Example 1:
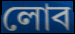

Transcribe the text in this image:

লোব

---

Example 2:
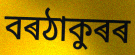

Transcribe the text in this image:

বৰঠাকুৰৰ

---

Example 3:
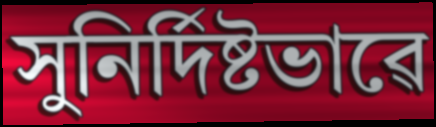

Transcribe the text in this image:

সুনিৰ্দিষ্টভাৱে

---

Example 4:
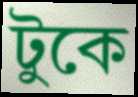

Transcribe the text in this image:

টুকে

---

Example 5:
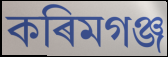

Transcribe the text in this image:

কৰিমগঞ্জ